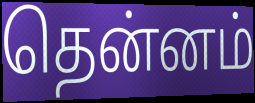
தென்னம்